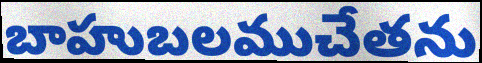
బాహుబలముచేతను